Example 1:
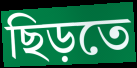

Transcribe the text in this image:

ছিড়তে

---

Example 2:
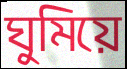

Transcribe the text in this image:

ঘুমিয়ে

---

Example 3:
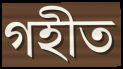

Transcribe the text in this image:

গহীত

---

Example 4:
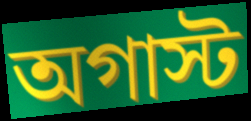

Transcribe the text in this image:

অগাস্ট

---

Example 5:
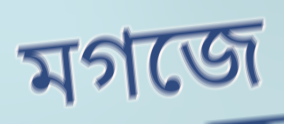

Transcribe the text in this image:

মগজে